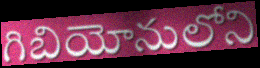
గిబియోనులోని